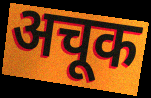
अचूक